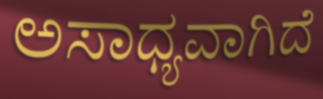
ಅಸಾಧ್ಯವಾಗಿದೆ